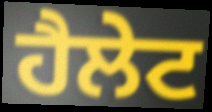
ਹੈਲੇਟ